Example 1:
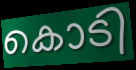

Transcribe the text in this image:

കൊടി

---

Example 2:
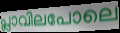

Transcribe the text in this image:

പ്ലാവിലപോലെ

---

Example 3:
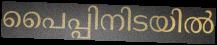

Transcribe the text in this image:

പൈപ്പിനിടയിൽ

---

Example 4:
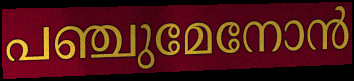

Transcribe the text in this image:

പഞ്ചുമേനോൻ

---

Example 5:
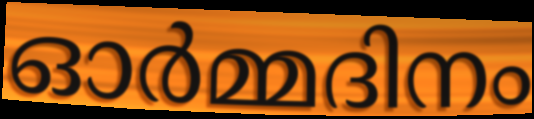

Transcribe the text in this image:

ഓർമ്മദിനം